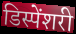
डिस्पेंशरी